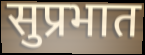
सुप्रभात